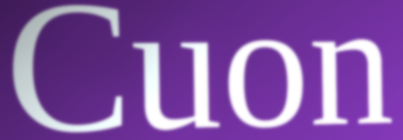
Cuon